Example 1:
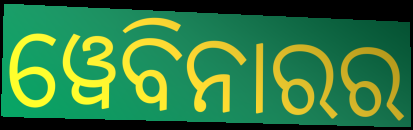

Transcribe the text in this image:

ୱେବିନାରର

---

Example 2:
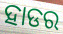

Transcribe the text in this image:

ହାଡର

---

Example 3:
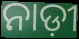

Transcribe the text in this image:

ନାଡ଼ୀ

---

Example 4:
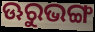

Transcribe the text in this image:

ଊରୁଭଙ୍ଗ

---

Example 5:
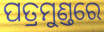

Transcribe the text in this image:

ପତ୍ରମୁଣ୍ଡରେ